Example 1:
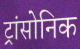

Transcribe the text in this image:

ट्रांसोनिक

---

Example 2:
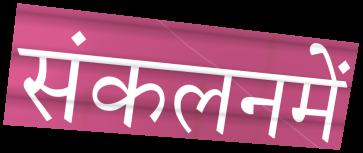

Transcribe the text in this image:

संकलनमें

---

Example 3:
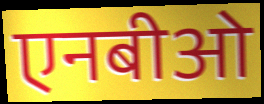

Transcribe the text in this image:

एनबीओ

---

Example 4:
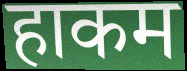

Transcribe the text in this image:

हाकम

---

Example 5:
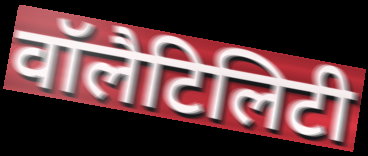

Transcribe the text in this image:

वॉलैटिलिटी